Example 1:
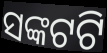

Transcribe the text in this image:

ସଙ୍କଟଟି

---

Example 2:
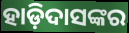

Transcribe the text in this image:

ହାଡ଼ିଦାସଙ୍କର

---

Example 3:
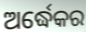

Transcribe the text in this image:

ଅର୍ଦ୍ଧେକର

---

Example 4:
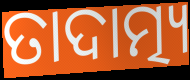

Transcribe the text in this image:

ତାଦାତ୍ମ୍ୟ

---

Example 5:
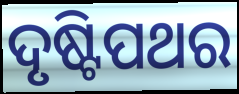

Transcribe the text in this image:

ଦୃଷ୍ଟିପଥର